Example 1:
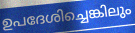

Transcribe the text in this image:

ഉപദേശിച്ചെങ്കിലും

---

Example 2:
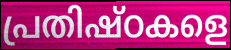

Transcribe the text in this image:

പ്രതിഷ്ഠകളെ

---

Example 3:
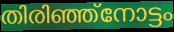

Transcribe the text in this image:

തിരിഞ്ഞ്നോട്ടം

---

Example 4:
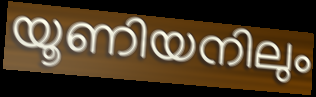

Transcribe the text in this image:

യൂണിയനിലും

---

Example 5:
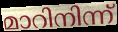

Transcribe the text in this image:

മാറിനിന്ന്